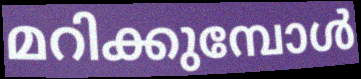
മറിക്കുമ്പോൾ